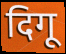
दिगू